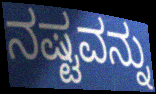
ನಷ್ಟವನ್ನು